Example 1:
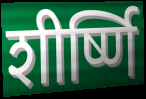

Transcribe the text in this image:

शीर्ष्णि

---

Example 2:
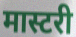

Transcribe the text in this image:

मास्टरी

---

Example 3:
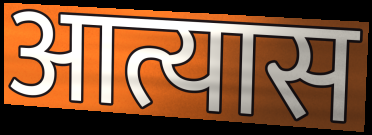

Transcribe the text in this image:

आत्यास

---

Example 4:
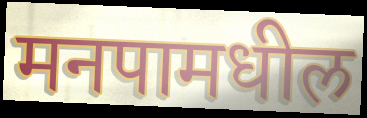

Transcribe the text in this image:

मनपामधील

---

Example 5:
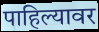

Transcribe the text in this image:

पाहिल्‍यावर